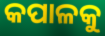
କପାଳକୁ